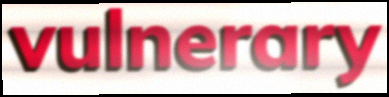
vulnerary